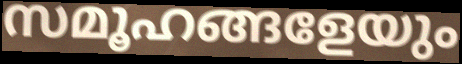
സമൂഹങ്ങളേയും